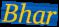
Bhar